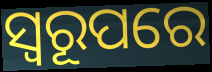
ସ୍ଵରୂପରେ